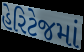
હેરિટેજમાં